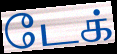
டேக்